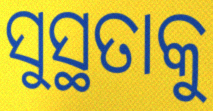
ସୁସ୍ଥତାକୁ